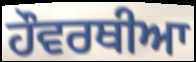
ਹੌਵਰਥੀਆ